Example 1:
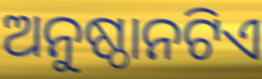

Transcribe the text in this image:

ଅନୁଷ୍ଠାନଟିଏ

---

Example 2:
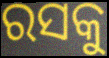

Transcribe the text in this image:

ରସକୁ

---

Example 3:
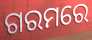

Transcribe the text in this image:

ଗରମରେ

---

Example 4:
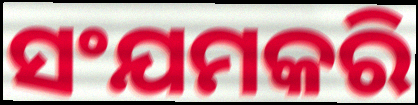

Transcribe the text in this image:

ସଂଯମକରି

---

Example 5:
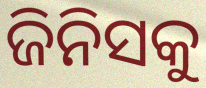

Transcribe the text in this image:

ଜିନିସକୁ